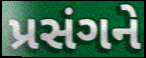
પ્રસંગને